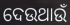
ଦେଉଥାଉଁ